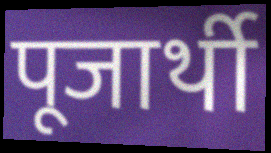
पूजार्थी